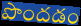
పొందడం